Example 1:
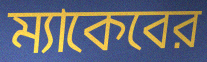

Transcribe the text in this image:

ম্যাকেবের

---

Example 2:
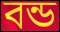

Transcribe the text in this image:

বন্ড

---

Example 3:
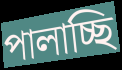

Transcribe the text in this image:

পালাচ্ছি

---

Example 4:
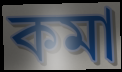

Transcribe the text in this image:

কমা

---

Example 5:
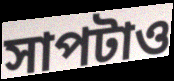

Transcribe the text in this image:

সাপটাও